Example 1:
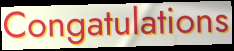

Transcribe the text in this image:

Congatulations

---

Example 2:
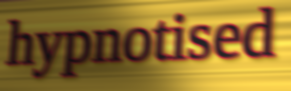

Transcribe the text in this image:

hypnotised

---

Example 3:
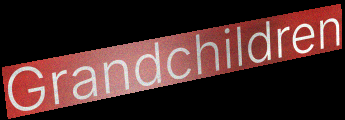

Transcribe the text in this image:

Grandchildren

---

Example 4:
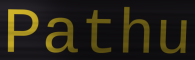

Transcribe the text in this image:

Pathu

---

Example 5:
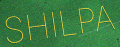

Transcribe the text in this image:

SHILPA